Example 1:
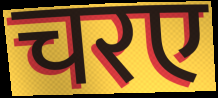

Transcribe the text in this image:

चरए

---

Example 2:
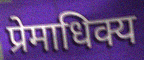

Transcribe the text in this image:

प्रेमाधिक्य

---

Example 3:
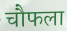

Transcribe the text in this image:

चौफला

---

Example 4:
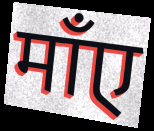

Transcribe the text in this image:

माँए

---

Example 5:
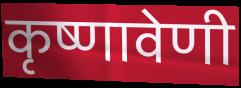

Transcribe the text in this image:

कृष्णावेणी